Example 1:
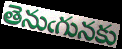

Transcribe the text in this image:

తెనుఁగునకు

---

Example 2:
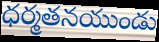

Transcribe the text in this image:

ధర్మతనయుండు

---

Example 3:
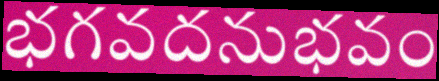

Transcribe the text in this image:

భగవదనుభవం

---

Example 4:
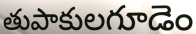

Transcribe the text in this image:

తుపాకులగూడెం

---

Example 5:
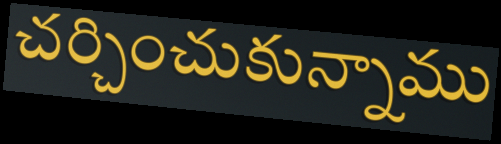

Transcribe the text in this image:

చర్చించుకున్నాము